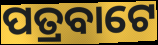
ପତ୍ରବାଟେ